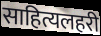
साहित्यलहरी